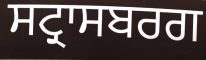
ਸਟ੍ਰਾਸਬਰਗ